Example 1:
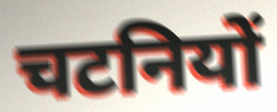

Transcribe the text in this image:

चटनियों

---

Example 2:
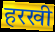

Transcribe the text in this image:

हरखी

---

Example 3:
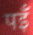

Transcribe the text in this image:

पइँ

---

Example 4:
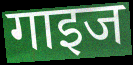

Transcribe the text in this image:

गाइज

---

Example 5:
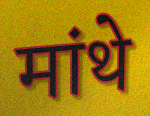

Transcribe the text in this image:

मांथे